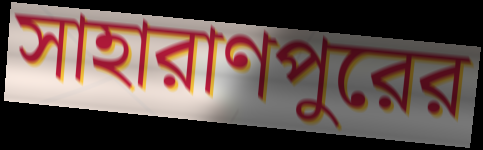
সাহারাণপুরের